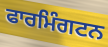
ਫਾਰਮਿੰਗਟਨ